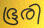
ഭൂരി